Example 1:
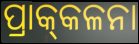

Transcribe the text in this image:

ପ୍ରାକ୍‌କଳନା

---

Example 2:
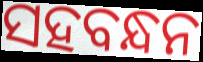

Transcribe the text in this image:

ସହବନ୍ଧନ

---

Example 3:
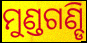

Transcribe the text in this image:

ମୁଣ୍ଡଗଣ୍ଡି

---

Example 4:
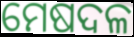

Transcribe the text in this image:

ମେଷଦଳ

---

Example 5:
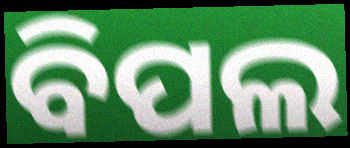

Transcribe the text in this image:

ବିପଲ